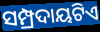
ସମ୍ପ୍ରଦାୟଟିଏ